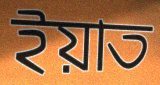
ইয়াত